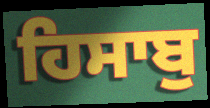
ਹਿਸਾਬੁ